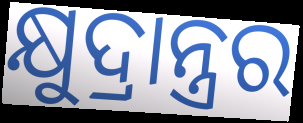
କ୍ଷୁଦ୍ରାନ୍ତ୍ରର